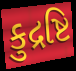
કુદ્રષ્ટિ